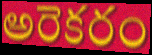
అరెకరం